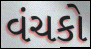
વંચકો